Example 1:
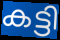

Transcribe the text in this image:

കട്ടി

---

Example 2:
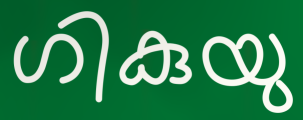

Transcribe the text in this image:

ഗികുയു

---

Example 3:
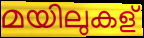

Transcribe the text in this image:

മയിലുകള്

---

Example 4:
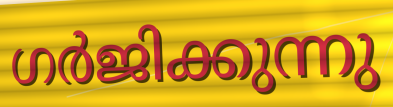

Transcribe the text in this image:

ഗർജിക്കുന്നു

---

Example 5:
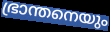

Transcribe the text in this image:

ഭ്രാന്തനെയും